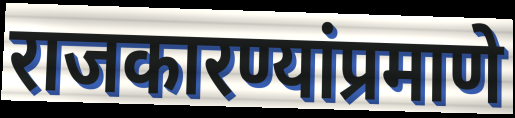
राजकारण्यांप्रमाणे